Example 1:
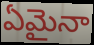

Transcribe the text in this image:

ఏమైనా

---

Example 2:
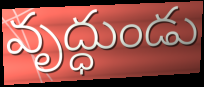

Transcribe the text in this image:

వృద్ధుండు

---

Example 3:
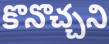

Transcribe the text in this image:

కొనొచ్చని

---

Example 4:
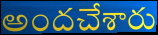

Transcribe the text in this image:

అందచేశారు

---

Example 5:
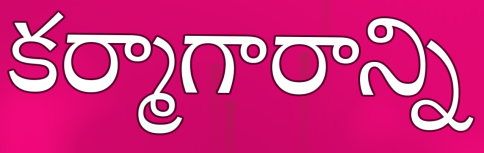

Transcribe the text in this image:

కర్మాగారాన్ని